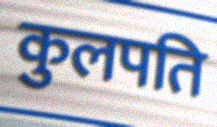
कुलपति